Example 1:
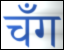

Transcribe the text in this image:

चँग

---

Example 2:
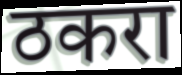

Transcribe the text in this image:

ठकरा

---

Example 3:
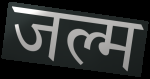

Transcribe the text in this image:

जल्म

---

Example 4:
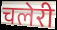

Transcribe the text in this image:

चलेरी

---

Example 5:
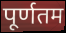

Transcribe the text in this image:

पूर्णतम